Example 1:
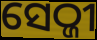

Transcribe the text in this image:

ସେଠ୍ଜୀ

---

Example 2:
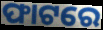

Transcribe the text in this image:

ଫାଟରେ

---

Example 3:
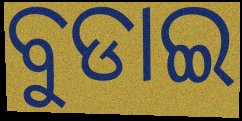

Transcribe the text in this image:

ବୁଡାଇ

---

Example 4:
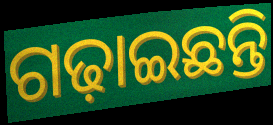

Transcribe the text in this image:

ଗଢ଼ାଇଛନ୍ତି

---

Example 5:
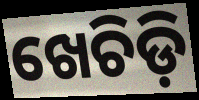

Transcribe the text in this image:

ଖେଚିଡ଼ି